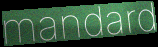
mandard